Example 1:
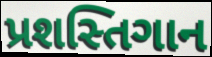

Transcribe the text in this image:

પ્રશસ્તિગાન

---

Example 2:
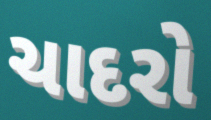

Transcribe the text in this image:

ચાદરો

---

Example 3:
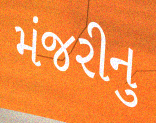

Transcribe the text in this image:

મંજરીનુ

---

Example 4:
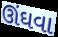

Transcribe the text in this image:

ઊંઘવા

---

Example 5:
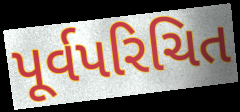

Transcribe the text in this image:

પૂર્વપરિચિત